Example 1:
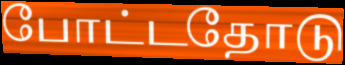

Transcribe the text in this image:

போட்டதோடு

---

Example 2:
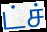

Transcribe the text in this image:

ட்ச்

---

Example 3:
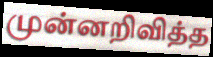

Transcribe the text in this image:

முன்னறிவித்த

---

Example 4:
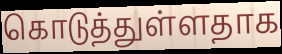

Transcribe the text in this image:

கொடுத்துள்ளதாக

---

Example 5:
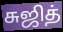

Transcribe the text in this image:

சுஜித்